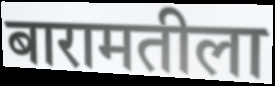
बारामतीला